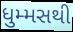
ધુમ્મસથી